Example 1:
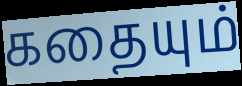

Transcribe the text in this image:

கதையும்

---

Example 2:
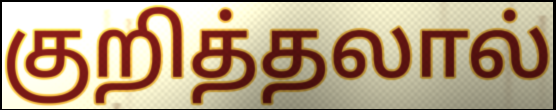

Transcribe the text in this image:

குறித்தலால்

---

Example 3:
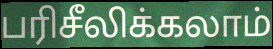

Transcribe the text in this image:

பரிசீலிக்கலாம்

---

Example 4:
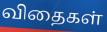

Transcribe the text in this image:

விதைகள்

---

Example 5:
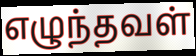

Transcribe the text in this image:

எழுந்தவள்